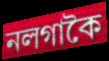
নলগাকৈ